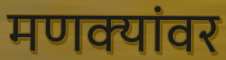
मणक्यांवर